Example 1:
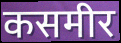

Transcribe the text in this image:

कसमीर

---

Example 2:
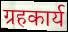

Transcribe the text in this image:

ग्रहकार्य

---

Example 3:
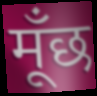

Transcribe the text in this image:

मूँछ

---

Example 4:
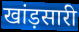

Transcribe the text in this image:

खांड़सारी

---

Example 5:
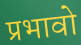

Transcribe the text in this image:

प्रभावो